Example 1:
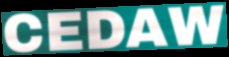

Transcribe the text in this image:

CEDAW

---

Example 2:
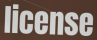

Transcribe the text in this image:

license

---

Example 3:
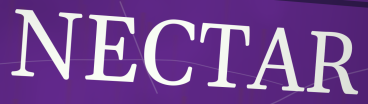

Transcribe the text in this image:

NECTAR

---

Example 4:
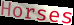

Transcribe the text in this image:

Horses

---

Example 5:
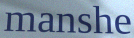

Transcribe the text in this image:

manshe